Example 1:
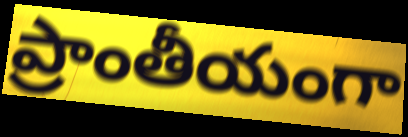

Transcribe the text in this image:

ప్రాంతీయంగా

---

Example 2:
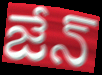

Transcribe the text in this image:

జేన్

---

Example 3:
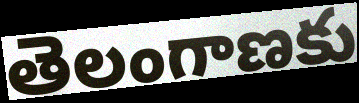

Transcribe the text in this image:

తెలంగాణకు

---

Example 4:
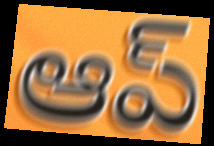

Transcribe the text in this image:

ఆప్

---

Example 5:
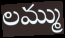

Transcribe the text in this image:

లమ్ము